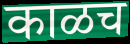
काळच